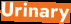
Urinary